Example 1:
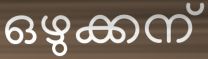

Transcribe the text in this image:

ഒഴുക്കന്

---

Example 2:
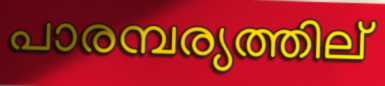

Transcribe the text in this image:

പാരമ്പര്യത്തില്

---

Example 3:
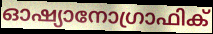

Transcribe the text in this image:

ഓഷ്യാനോഗ്രാഫിക്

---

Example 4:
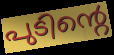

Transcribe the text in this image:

പുടിന്റെ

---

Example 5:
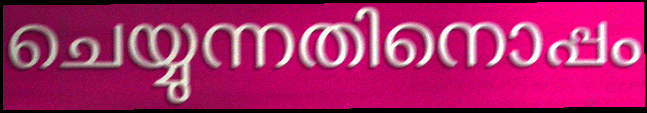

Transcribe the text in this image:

ചെയ്യുന്നതിനൊപ്പം